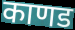
काणड